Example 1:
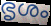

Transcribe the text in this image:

ഭൃശം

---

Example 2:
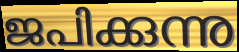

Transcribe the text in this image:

ജപിക്കുന്നു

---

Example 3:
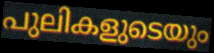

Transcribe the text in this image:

പുലികളുടെയും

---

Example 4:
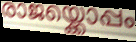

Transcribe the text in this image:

രാജയ്ക്കൊപ്പം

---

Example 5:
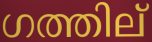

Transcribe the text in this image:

ഗത്തില്